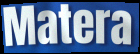
Matera